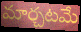
మార్చటమే